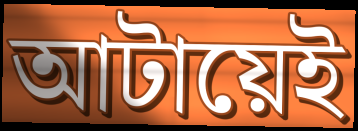
আটায়েই